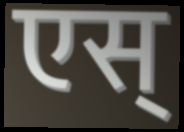
एस्